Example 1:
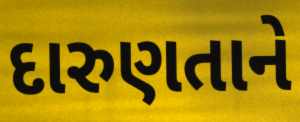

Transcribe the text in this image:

દારુણતાને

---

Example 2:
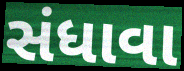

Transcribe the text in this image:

સંધાવા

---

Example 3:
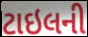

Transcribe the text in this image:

ટાઇલની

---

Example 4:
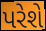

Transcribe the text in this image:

પરેશે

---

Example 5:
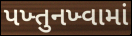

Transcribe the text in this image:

પખ્તુનખ્વામાં